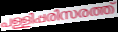
പള്ളിപ്പരിസരത്ത്